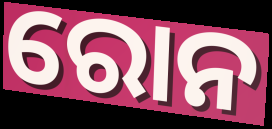
ରୋନ